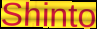
Shinto